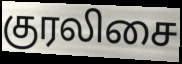
குரலிசை